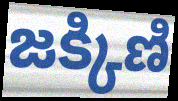
జక్కిణి